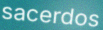
sacerdos